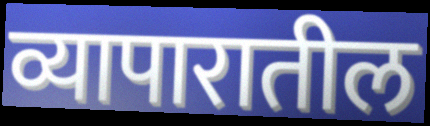
व्यापारातील